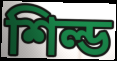
শিল্ড